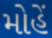
મોહેં